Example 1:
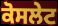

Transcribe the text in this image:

ਕੋਸਲੇਟ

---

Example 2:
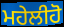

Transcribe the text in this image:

ਮਹੇਲੀਹੋ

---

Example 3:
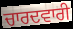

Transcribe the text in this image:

ਚਾਰਦਵਾਰੀ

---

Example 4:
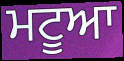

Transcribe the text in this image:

ਮਟੂਆ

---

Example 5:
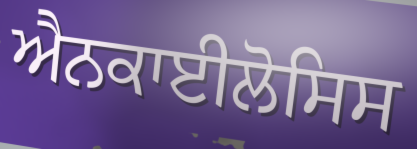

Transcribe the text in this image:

ਐਨਕਾਈਲੋਸਿਸ